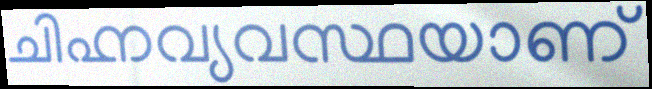
ചിഹ്നവ്യവസ്ഥയാണ്